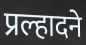
प्रल्हादने